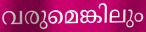
വരുമെങ്കിലും